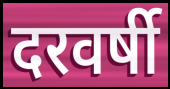
दरवर्षी